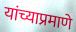
यांच्याप्रमाणे